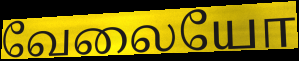
வேலையோ